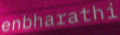
enbharathi